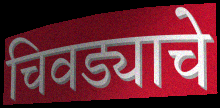
चिवड्याचे